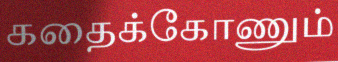
கதைக்கோணும்